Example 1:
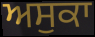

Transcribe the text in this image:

ਅਸੁਕਾ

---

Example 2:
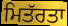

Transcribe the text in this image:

ਮਿਤੱਰਤਾ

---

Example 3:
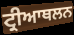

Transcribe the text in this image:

ਟ੍ਰੀਆਥਲਨ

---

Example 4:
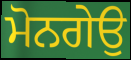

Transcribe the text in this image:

ਮੋਨਗੇਉ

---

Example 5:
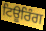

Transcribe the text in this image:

ਟਿਊਰਿੰਗ